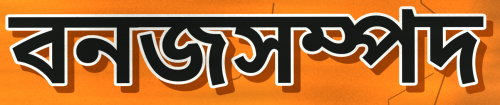
বনজসম্পদ